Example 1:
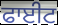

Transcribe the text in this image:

ਫਾਈਟ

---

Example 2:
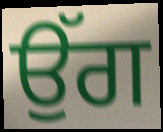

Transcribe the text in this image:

ਉੱਗ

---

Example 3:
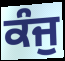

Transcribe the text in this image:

ਕੰਜੁ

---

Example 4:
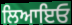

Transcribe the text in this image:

ਲਿਆਇਓ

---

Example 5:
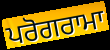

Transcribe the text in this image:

ਪਰੋਗਰਾਮਾ